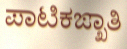
ಪಾಟಿಕಙ್ಖಾತಿ